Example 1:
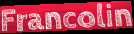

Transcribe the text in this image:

Francolin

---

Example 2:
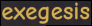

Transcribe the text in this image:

exegesis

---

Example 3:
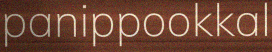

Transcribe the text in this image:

panippookkal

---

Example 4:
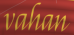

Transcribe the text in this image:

vahan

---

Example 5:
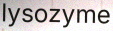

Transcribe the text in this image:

lysozyme